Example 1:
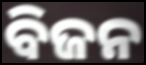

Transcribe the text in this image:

ବିଜନ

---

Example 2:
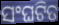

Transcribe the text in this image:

ସଂଘଟିତ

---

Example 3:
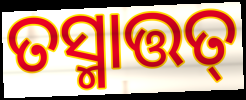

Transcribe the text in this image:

ତସ୍ମାତ୍ତତ୍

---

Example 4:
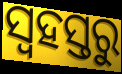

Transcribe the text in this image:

ସ୍ୱହସ୍ତରୁ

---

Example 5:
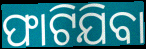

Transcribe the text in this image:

ଫାଟିଯିବା